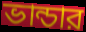
ভান্ডার